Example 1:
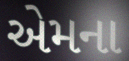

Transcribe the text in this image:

એમના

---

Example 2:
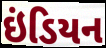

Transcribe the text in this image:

ઇંડિયન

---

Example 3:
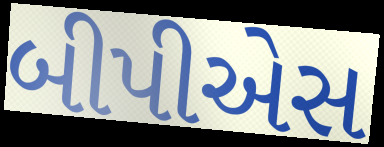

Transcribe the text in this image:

બીપીએસ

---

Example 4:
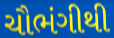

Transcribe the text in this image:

ચૌભંગીથી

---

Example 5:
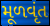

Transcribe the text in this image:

મૂળવૃંત